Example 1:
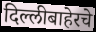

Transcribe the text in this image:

दिल्लीबाहेरचे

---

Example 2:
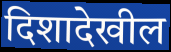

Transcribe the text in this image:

दिशादेखील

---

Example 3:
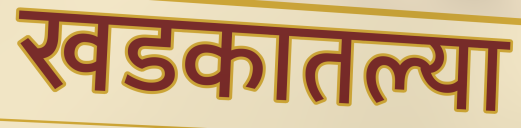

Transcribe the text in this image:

खडकातल्या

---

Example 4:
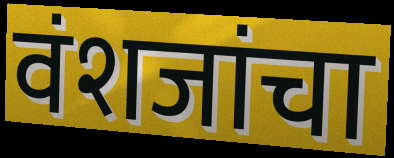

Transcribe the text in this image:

वंशजांचा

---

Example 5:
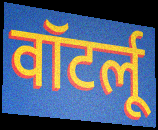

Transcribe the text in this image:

वॉटर्लू